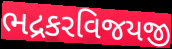
ભદ્રકરવિજયજી